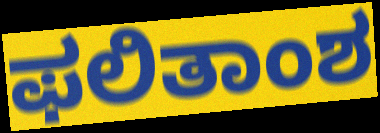
ಫಲಿತಾಂಶ